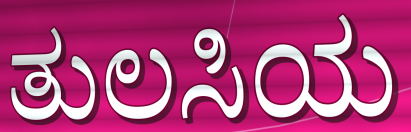
ತುಲಸಿಯ